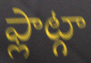
ఫ్లాట్గా